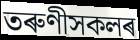
তৰুণীসকলৰ